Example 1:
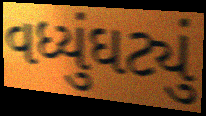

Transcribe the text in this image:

વધ્યુંઘટ્યું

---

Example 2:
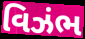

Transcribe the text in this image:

વિઝંભ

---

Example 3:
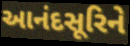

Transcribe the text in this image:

આનંદસૂરિને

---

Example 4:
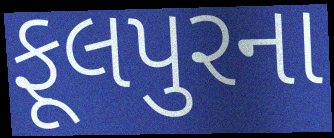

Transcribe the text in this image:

ફૂલપુરના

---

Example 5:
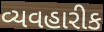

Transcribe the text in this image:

વ્યવહારીક